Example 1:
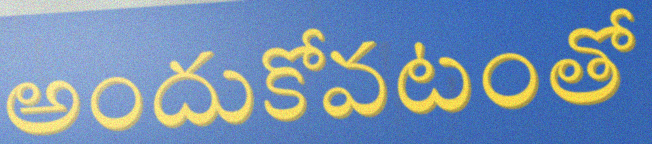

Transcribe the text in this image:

అందుకోవటంతో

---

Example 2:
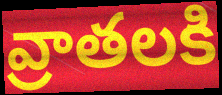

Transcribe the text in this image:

వ్రాతలకి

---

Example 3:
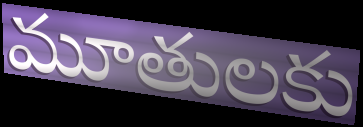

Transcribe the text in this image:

మూతులకు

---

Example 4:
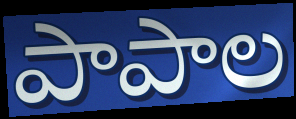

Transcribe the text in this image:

పాపాల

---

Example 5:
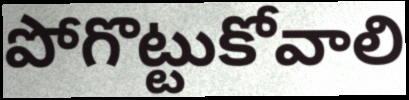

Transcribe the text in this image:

పోగొట్టుకోవాలి